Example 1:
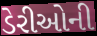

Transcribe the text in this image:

ડેરીઓની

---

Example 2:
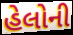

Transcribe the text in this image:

હેલોની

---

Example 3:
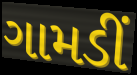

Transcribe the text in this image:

ગામડીં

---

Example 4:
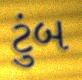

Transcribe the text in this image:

ટુંબ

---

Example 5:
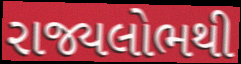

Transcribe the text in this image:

રાજ્યલોભથી